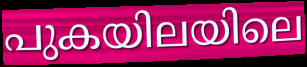
പുകയിലയിലെ